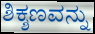
ಶಿಕ್ಶಣವನ್ನು